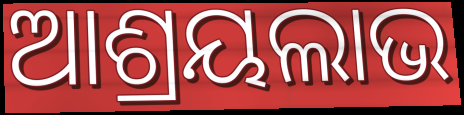
ଆଶ୍ରୟଲାଭ